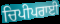
ਚਿਪੀਪਰਾਈ